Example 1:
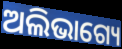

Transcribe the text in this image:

ଅଲିଭାଗ୍ୟେ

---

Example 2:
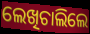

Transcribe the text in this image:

ଲେଖିଚାଲିଲେ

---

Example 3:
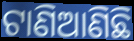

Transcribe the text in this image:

ଟାଣିଆଣିଛି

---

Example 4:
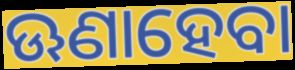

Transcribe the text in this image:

ଊଣାହେବା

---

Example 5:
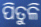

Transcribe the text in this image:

ପିତୁଳି